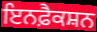
ਇਨਫ਼ੈਕਸ਼ਨ